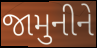
જામુનીને